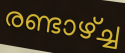
രണ്ടാഴ്ച്ച